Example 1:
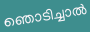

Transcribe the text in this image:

ഞൊടിച്ചാൽ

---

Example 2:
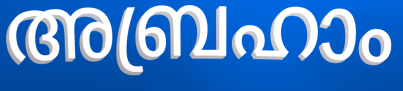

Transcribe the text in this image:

അബ്രഹാം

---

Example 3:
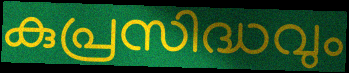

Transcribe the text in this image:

കുപ്രസിദ്ധവും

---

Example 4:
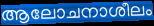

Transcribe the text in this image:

ആലോചനാശീലം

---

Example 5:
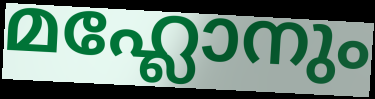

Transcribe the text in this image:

മഹ്ലോനും